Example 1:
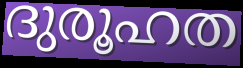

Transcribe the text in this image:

ദുരൂഹത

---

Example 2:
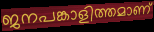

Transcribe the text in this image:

ജനപങ്കാളിത്തമാണ്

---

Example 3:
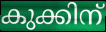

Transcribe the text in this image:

കുക്കിന്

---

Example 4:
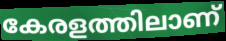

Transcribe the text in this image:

കേരളത്തിലാണ്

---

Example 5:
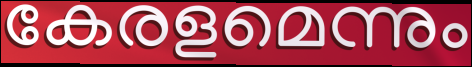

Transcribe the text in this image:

കേരളമെന്നും